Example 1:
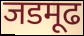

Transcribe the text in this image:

जडमूढ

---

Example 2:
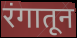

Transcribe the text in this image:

रंगातून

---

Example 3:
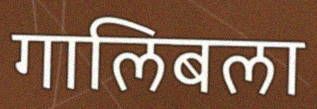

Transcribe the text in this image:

गालिबला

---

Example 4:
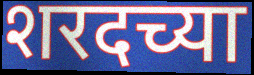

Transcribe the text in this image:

शरदच्या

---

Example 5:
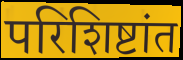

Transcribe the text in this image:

परिशिष्टांत